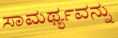
ಸಾಮರ್ಥ್ಯವನ್ನು